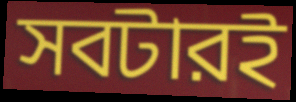
সবটারই